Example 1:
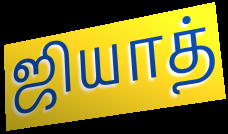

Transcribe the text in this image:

ஜியாத்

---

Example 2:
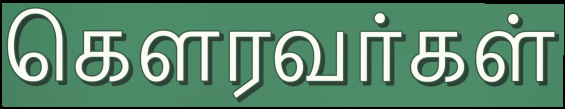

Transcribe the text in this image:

கெளரவர்கள்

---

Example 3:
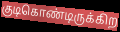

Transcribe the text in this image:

குடிகொண்டிருக்கிற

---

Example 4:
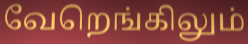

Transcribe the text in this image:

வேறெங்கிலும்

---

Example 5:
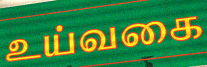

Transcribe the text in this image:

உய்வகை